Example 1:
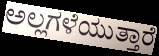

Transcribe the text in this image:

ಅಲ್ಲಗಳೆಯುತ್ತಾರೆ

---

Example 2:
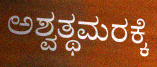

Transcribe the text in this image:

ಅಶ್ವತ್ಥಮರಕ್ಕೆ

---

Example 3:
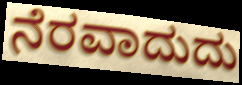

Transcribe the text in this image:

ನೆರವಾದುದು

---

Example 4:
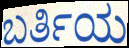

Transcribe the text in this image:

ಬರ್ತಿಯ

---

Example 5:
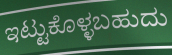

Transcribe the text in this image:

ಇಟ್ಟುಕೊಳ್ಳಬಹುದು